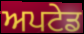
ਅਪਟੇਡ